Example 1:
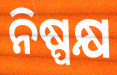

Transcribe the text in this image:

ନିଷ୍ପକ୍ଷ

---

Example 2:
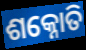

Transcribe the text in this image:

ଶକ୍ନୋତି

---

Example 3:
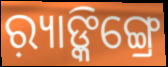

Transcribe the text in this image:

ର଼୍ୟାଙ୍କିଙ୍ଗ୍ରେ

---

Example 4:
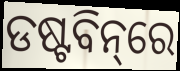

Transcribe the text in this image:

ଡଷ୍ଟବିନ୍‌ରେ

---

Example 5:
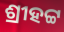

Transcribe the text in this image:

ଶ୍ରୀହଟ୍ଟ